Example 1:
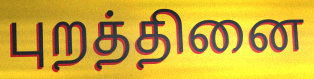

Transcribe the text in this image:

புறத்தினை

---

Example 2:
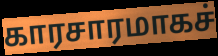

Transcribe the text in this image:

காரசாரமாகச்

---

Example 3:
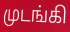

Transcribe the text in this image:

முடங்கி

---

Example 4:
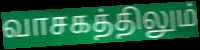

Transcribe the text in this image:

வாசகத்திலும்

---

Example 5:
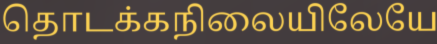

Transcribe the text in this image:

தொடக்கநிலையிலேயே